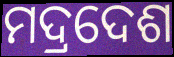
ମଦ୍ରଦେଶ